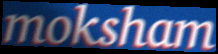
moksham